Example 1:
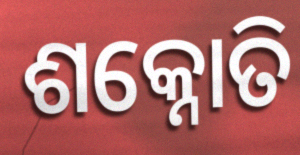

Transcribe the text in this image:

ଶକ୍ନୋତି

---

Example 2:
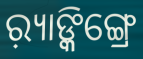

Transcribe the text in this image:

ର଼୍ୟାଙ୍କିଙ୍ଗ୍ରେ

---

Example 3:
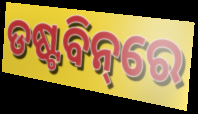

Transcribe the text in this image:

ଡଷ୍ଟବିନ୍‌ରେ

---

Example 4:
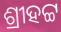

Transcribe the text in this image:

ଶ୍ରୀହଟ୍ଟ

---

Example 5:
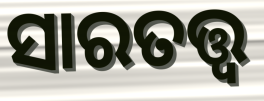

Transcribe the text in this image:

ସାରତତ୍ତ୍ୱ